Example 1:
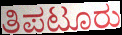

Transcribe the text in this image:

ತಿಪಟೂರು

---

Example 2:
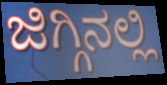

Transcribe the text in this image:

ಜಿಗ್ಗಿನಲ್ಲಿ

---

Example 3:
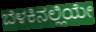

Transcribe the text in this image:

ಬೆಳಕಿನಲ್ಲಿಯೇ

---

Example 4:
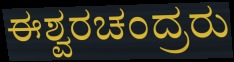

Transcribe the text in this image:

ಈಶ್ವರಚಂದ್ರರು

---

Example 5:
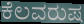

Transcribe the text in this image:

ಕೆಲವರುಷ